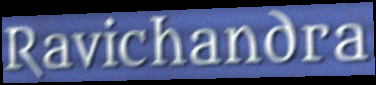
Ravichandra